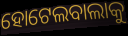
ହୋଟେଲବାଲାକୁ